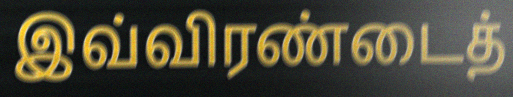
இவ்விரண்டைத்